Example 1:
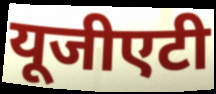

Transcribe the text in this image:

यूजीएटी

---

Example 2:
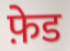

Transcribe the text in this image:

फ़ेड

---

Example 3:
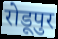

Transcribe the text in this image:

रोडूपुर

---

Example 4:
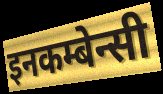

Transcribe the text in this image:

इनकम्बेन्सी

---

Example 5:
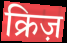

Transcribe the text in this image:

क्रिज़